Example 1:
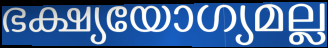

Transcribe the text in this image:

ഭക്ഷ്യയോഗ്യമല്ല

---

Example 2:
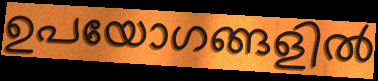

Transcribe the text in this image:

ഉപയോഗങ്ങളിൽ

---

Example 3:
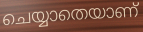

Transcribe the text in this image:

ചെയ്യാതെയാണ്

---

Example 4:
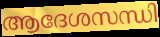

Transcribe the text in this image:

ആദേശസന്ധി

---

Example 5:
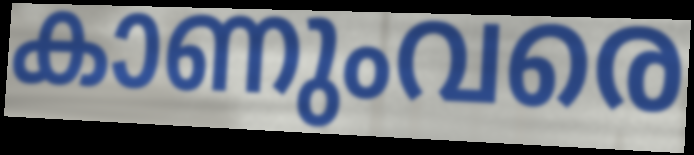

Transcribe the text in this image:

കാണുംവരെ